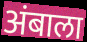
अंबाला